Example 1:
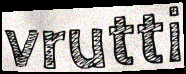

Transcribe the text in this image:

vrutti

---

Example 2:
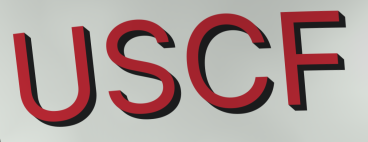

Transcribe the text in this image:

USCF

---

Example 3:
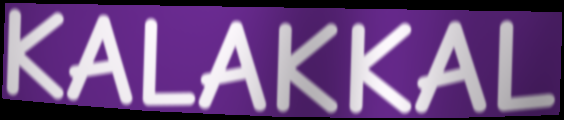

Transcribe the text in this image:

KALAKKAL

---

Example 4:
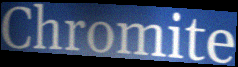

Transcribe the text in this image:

Chromite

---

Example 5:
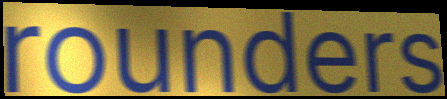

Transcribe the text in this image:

rounders